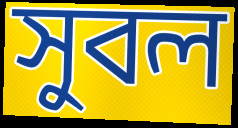
সুবল